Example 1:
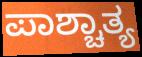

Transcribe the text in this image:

ಪಾಶ್ಚಾತ್ಯ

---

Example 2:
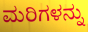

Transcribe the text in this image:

ಮರಿಗಳನ್ನು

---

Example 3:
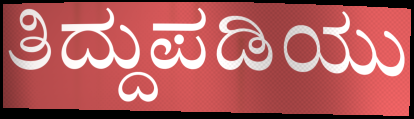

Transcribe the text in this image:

ತಿದ್ದುಪಡಿಯು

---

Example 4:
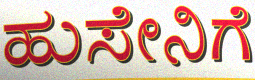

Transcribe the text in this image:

ಹುಸೇನಿಗೆ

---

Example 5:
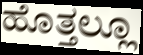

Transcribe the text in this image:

ಹೊತ್ತಲ್ಲೂ